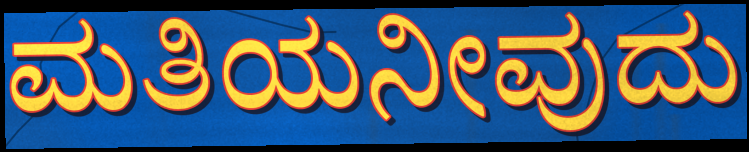
ಮತಿಯನೀವುದು